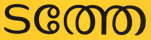
ടത്തേ